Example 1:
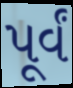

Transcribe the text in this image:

પૂર્વં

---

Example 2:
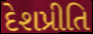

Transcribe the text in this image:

દેશપ્રીતિ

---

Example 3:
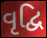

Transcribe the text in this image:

વૃદ્વિ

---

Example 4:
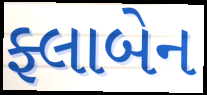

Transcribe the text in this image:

ફ્લાબેન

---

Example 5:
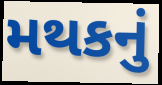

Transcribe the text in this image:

મથકનું